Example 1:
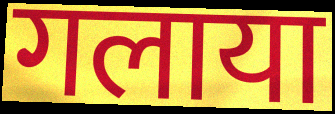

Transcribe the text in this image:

गलाया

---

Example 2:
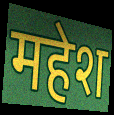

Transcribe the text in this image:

महेश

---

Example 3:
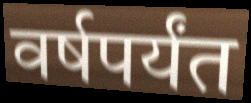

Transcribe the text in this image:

वर्षपर्यंत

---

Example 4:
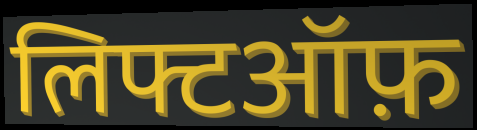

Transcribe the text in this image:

लिफ्टऑफ़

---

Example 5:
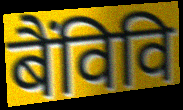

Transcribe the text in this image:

बैंविवि